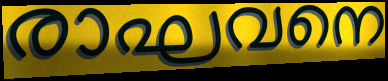
രാഘവനെ